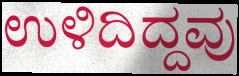
ಉಳಿದಿದ್ದವು